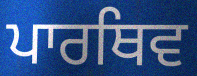
ਪਾਰਥਿਵ